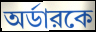
অর্ডারকে